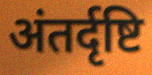
अंतर्दृष्टि